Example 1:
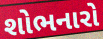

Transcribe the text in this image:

શોભનારો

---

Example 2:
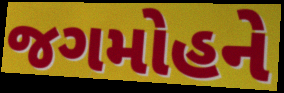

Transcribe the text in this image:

જગમોહને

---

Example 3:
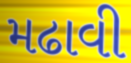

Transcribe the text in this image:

મઢાવી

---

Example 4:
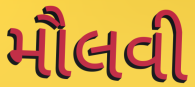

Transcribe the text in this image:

મૌલવી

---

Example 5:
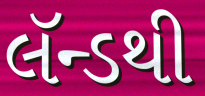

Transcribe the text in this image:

લૅન્ડથી